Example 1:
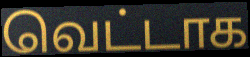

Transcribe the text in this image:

வெட்டாக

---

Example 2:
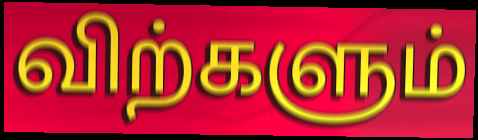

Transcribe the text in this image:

விற்களும்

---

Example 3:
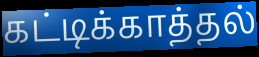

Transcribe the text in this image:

கட்டிக்காத்தல்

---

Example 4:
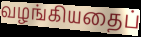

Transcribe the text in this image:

வழங்கியதைப்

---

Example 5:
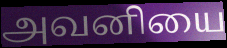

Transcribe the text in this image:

அவனியை